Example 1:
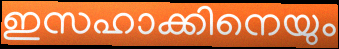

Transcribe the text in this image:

ഇസഹാക്കിനെയും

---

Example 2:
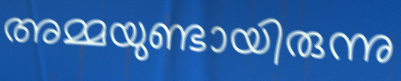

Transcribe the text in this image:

അമ്മയുണ്ടായിരുന്നു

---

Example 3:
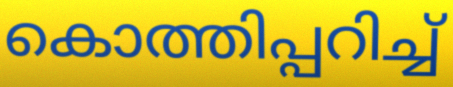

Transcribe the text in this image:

കൊത്തിപ്പറിച്ച്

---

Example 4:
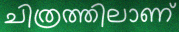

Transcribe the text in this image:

ചിത്രത്തിലാണ്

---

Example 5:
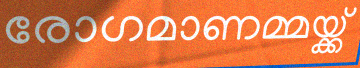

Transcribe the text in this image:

രോഗമാണമ്മയ്ക്ക്